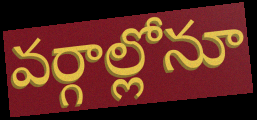
వర్గాల్లోనూ